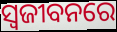
ସ୍ଵଜୀବନରେ